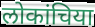
लोकांचिया